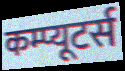
कम्प्यूटर्स